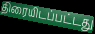
திரையிடப்பட்டது